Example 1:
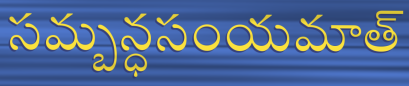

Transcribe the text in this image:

సమ్బన్ధసంయమాత్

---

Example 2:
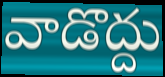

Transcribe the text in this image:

వాడొద్దు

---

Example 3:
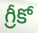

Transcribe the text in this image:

గ్రీకో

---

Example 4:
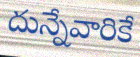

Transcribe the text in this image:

దున్నేవారికే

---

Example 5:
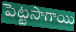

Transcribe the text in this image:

పెట్టసాగాయి